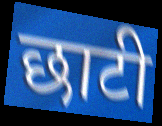
छाटी